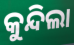
କୁନ୍ଦିଲା